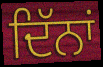
ਦਿੱਨਾਂ